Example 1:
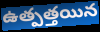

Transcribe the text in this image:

ఉత్పత్తయిన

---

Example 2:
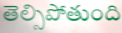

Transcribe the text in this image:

తెల్సిపోతుంది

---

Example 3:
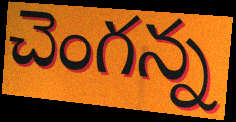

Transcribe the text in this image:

చెంగన్న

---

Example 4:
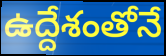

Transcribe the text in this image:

ఉద్దేశంతోనే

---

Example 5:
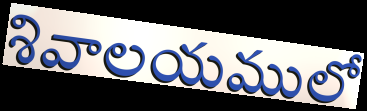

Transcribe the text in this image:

శివాలయములో